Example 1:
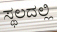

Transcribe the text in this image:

ಸ್ಥಲದಲ್ಲಿ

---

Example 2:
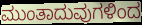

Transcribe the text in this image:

ಮುಂತಾದುವುಗಳಿಂದ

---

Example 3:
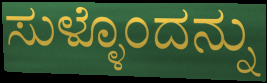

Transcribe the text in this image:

ಸುಳ್ಳೊಂದನ್ನು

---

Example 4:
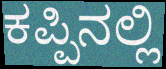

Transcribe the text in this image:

ಕಪ್ಪಿನಲ್ಲಿ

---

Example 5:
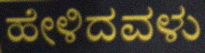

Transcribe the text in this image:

ಹೇಳಿದವಳು